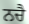
ਨਚੈ